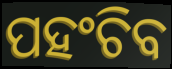
ପହଂଚିବ